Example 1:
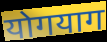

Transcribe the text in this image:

योगयाग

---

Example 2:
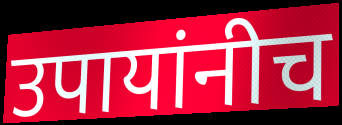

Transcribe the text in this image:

उपायांनीच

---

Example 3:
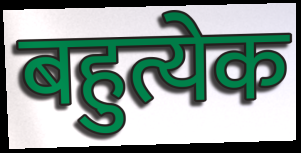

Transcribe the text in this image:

बहुत्येक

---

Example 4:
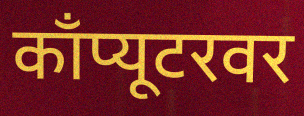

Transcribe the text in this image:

काँप्यूटरवर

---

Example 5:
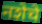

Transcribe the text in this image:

नशेचे